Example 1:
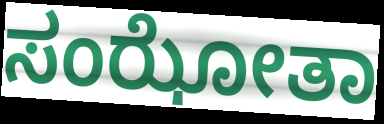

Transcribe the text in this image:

ಸಂಝೋತಾ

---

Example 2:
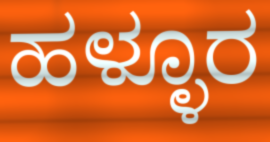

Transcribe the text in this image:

ಹಳ್ಳೂರ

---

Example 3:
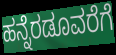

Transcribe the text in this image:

ಹನ್ನೆರಡೂವರೆಗೆ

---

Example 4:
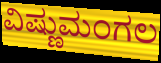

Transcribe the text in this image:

ವಿಷ್ಣುಮಂಗಲ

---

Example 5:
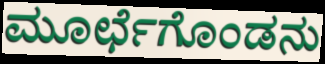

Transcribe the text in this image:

ಮೂರ್ಛೆಗೊಂಡನು